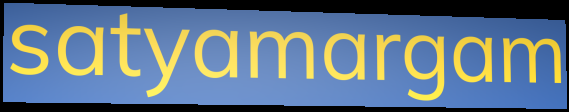
satyamargam